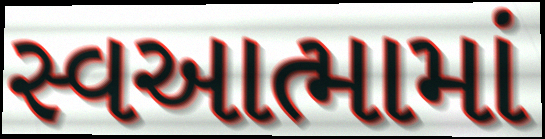
સ્વઆત્મામાં